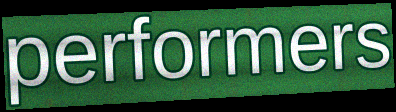
performers